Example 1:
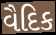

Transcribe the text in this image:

વૈદિક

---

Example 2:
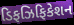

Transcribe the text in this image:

ડિફઝિફિકેશન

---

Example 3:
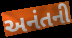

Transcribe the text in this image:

અનંતની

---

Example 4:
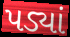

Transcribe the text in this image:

પડ્યાં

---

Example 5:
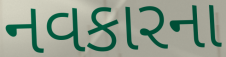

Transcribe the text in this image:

નવકારના